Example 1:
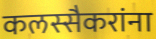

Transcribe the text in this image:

कलस्सैकरांना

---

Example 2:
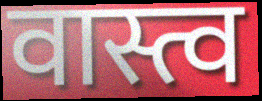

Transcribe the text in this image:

वास्त्व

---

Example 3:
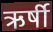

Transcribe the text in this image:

ऋर्षी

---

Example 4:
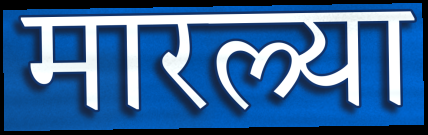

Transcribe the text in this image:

मारल्या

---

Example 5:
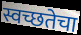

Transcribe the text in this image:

स्वच्छतेचा